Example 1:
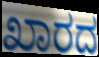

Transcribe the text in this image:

ಖಾರದ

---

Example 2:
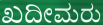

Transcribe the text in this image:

ಖದೀಮರು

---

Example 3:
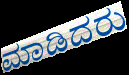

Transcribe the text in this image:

ಮಾಡಿದರು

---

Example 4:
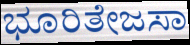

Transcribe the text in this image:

ಭೂರಿತೇಜಸಾ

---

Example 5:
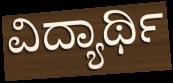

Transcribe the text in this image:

ವಿದ್ಯಾರ್ಥಿ